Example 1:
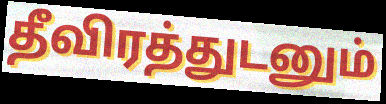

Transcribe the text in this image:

தீவிரத்துடனும்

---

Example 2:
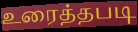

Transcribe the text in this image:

உரைத்தபடி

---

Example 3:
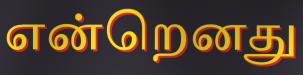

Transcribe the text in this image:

என்றெனது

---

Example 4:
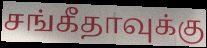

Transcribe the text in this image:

சங்கீதாவுக்கு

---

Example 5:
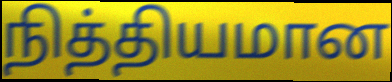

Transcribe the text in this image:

நித்தியமான